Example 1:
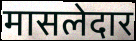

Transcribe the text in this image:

मासलेदार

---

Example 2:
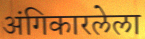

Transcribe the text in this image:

अंगिकारलेला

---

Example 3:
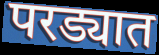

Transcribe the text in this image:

परड्यात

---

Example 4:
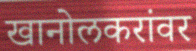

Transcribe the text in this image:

खानोलकरांवर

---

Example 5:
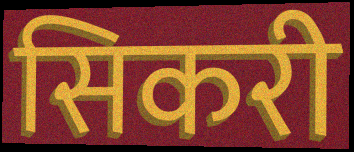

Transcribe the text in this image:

सिकरी